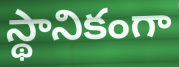
స్థానికంగా